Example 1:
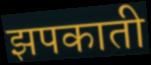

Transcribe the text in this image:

झपकाती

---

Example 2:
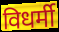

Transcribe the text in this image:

विधर्मी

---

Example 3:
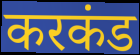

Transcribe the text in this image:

करकंड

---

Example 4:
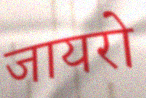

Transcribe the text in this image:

जायरो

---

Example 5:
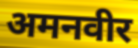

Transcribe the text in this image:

अमनवीर